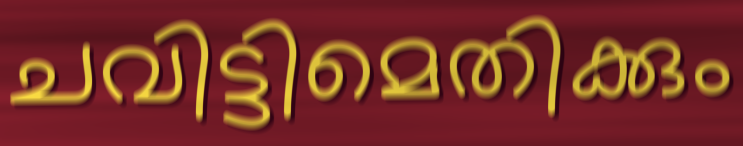
ചവിട്ടിമെതിക്കും